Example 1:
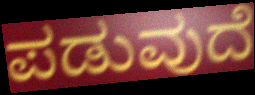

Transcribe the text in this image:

ಪಡುವುದೆ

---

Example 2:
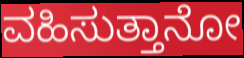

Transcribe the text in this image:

ವಹಿಸುತ್ತಾನೋ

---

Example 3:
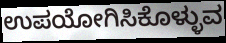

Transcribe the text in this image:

ಉಪಯೋಗಿಸಿಕೊಳ್ಳುವ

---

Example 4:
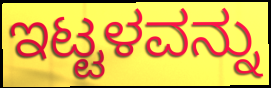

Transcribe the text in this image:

ಇಟ್ಟಳವನ್ನು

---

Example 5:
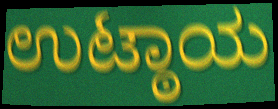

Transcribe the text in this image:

ಉಟ್ಠಾಯ